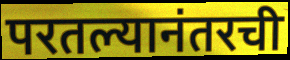
परतल्यानंतरची